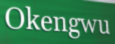
Okengwu